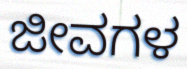
ಜೀವಗಳ